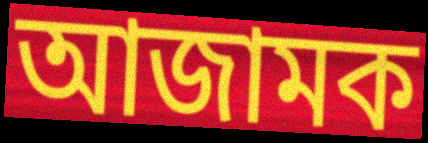
আজামক